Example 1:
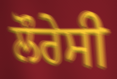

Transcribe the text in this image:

ਲੌਰੇਸੀ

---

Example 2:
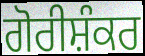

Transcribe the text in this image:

ਗੋਰੀਸ਼ੰਕਰ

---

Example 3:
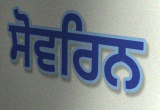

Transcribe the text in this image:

ਸੋਵਰਿਨ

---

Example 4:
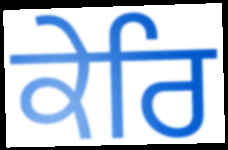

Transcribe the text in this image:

ਕੇਰਿ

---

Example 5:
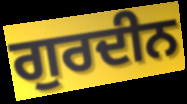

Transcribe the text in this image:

ਗੁਰਦੀਨ